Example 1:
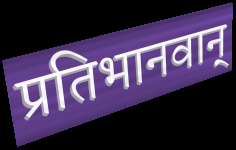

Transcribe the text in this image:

प्रतिभानवान्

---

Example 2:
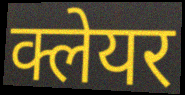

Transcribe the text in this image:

क्लेयर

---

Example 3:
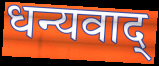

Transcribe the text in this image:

धन्यवाद्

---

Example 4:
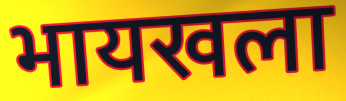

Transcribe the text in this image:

भायखला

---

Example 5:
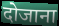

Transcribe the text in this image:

दोजाना